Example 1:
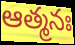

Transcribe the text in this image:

ఆత్మనః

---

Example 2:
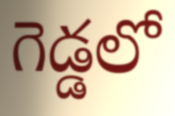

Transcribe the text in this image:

గెడ్డలో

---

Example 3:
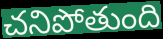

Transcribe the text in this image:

చనిపోతుంది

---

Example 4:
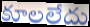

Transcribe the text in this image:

కూలలేదు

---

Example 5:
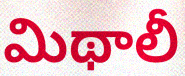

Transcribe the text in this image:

మిథాలీ